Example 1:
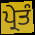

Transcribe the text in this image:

ਪ੍ਰੇਤੰ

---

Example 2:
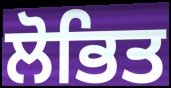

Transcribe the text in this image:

ਲੋਭਿਤ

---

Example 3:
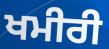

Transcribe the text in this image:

ਖਮੀਰੀ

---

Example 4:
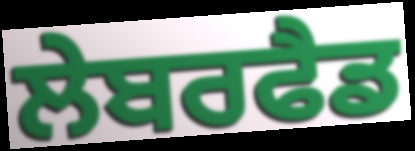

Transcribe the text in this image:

ਲੇਬਰਫੈਡ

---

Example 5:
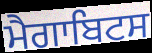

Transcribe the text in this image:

ਮੈਗਾਬਿਟਸ